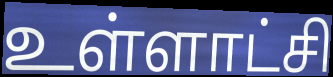
உள்ளாட்சி